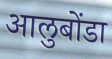
आलुबोंडा